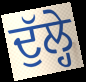
ਦੁੱਲ੍ਹੇ